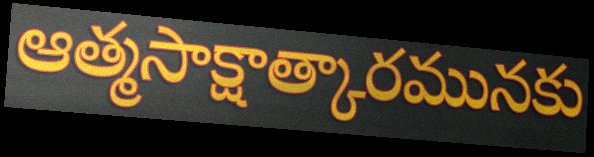
ఆత్మసాక్షాత్కారమునకు